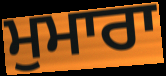
ਮੁਮਾਰਾ